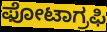
ಫೋಟಾಗ್ರಫಿ